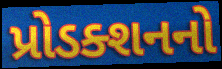
પ્રોડક્શનનો